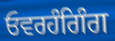
ਓਵਰਹੰਗਿੰਗ